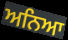
ਅਨਿਆ